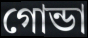
গোন্ডা